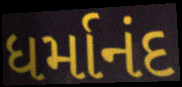
ધર્માનંદ